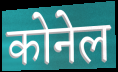
कोनेल